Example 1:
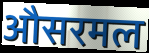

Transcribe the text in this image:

औसरमल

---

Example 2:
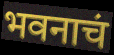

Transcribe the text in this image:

भवनाचं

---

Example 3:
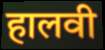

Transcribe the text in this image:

हालवी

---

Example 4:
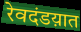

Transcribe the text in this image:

रेवदंडय़ात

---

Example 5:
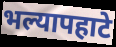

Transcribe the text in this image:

भल्यापहाटे